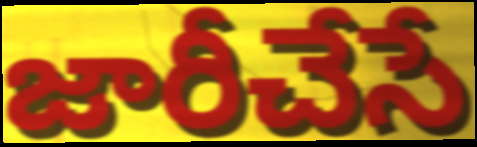
జారీచేసే